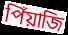
পিঁয়াজি